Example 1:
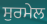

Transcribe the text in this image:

ਸੁਰਮੇਲ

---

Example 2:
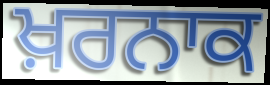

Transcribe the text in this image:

ਖ਼ਰਨਾਕ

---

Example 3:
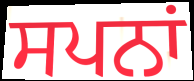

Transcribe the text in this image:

ਸਪਨਾਂ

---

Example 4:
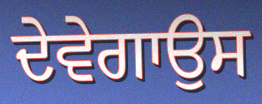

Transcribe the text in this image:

ਦੇਵੇਗਾਉਸ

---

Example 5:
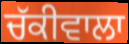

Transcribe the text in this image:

ਚੱਕੀਵਾਲਾ